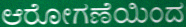
ಆರೋಗಣೆಯಿಂದ